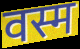
वस्म